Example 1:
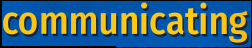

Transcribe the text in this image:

communicating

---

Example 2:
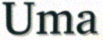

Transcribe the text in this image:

Uma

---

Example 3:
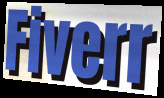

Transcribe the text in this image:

Fiverr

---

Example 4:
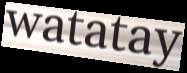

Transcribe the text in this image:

watatay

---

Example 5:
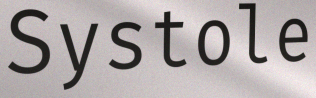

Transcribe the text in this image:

Systole